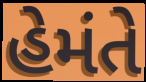
હેમંતે